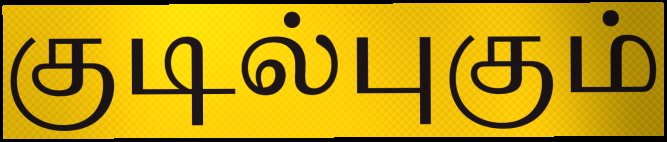
குடில்புகும்